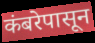
कंबरेपासून